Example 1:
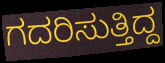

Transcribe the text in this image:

ಗದರಿಸುತ್ತಿದ್ದ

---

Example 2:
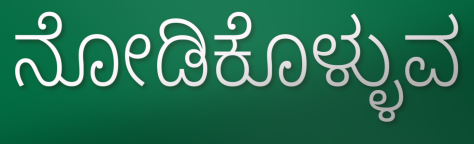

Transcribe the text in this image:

ನೋಡಿಕೊಳ್ಳುವ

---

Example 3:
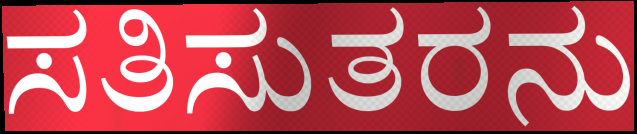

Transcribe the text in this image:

ಸತಿಸುತರನು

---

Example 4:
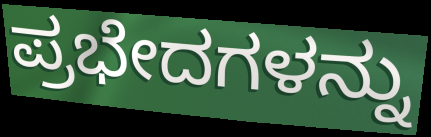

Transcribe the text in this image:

ಪ್ರಭೇದಗಳನ್ನು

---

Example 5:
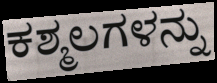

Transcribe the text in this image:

ಕಶ್ಮಲಗಳನ್ನು